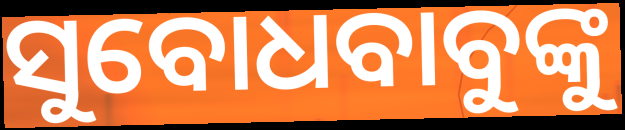
ସୁବୋଧବାବୁଙ୍କୁ